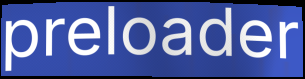
preloader